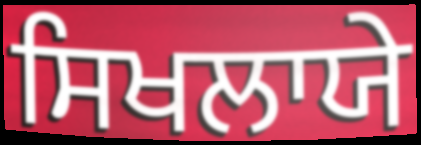
ਸਿਖਲਾਯੇ